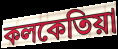
কলকেতিয়া